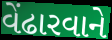
વેંઢારવાને